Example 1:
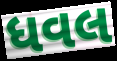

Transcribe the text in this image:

ધવલ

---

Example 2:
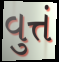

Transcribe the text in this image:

વુત્તં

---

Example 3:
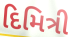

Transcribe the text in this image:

દિમિત્રી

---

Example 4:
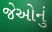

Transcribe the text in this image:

જેઓનું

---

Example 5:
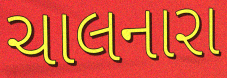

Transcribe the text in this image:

ચાલનારા